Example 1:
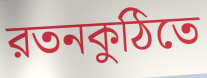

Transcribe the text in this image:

রতনকুঠিতে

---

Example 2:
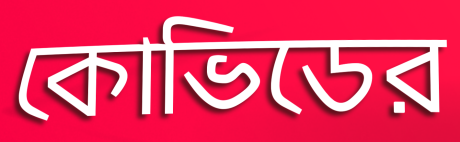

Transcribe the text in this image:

কোভিডের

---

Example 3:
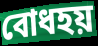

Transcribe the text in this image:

বোধহয়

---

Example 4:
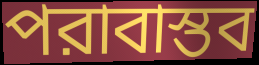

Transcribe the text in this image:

পরাবাস্তব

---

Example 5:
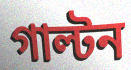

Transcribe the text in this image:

গাল্টন